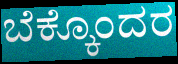
ಬೆಕ್ಕೊಂದರ